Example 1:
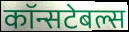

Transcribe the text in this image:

कॉन्सटेबल्स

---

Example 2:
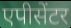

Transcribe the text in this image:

एपीसेंटर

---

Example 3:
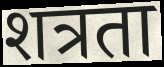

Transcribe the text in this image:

शत्रता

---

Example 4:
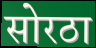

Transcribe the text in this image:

सोरठा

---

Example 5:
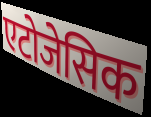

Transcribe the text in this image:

एटोजेसिक